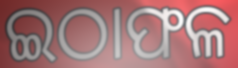
ଇଠାଫଳ